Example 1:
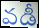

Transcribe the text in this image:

వడీ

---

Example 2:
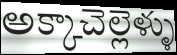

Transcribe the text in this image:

అక్కాచెల్లెళ్ళు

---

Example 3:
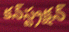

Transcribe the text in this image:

కన్‍స్ట్రక్షన్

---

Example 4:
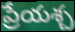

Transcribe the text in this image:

ప్రేయశ్చ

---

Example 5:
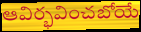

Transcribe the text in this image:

ఆవిర్భవించబోయే